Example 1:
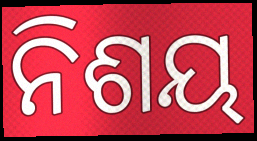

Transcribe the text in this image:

ନିଶୟ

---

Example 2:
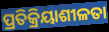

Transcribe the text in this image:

ପ୍ରତିକ୍ରିୟାଶୀଳତା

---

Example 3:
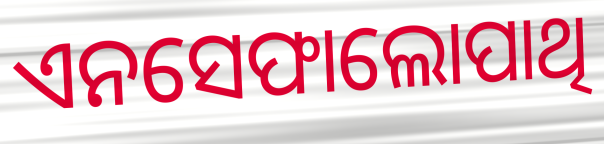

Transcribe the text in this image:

ଏନସେଫାଲୋପାଥି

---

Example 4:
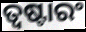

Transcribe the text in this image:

ତ୍ୱଷ୍ଟାରଂ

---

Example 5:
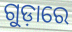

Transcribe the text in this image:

ଗୁଡ଼ାରେ